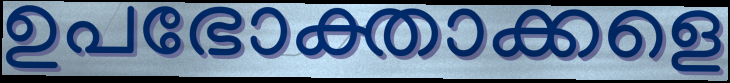
ഉപഭോക്താക്കളെ